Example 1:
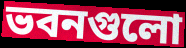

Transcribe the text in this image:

ভবনগুলো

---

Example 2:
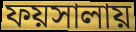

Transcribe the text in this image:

ফয়সালায়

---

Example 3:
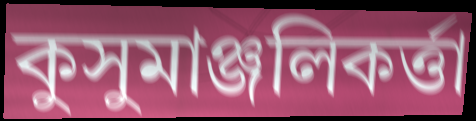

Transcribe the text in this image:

কুসুমাঞ্জলিকর্ত্তা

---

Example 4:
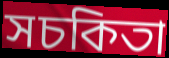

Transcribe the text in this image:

সচকিতা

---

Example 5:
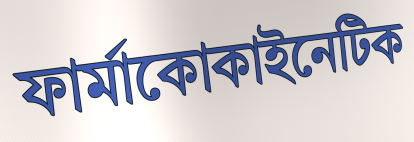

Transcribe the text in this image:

ফার্মাকোকাইনেটিক